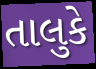
તાલુકે